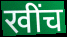
खींच